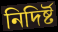
নিদিৰ্ষ্ট